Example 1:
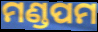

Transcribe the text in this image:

ମଣ୍ଡପମ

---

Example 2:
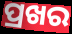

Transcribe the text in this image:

ପ୍ରଖର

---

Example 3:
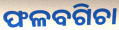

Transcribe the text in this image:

ଫଳବଗିଚା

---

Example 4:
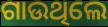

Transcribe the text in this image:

ଗାଉଥିଲେ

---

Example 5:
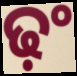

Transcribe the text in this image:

ଢ଼ଂ